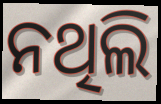
ନଥିଲି